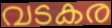
വടകര